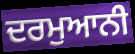
ਦਰਮੁਆਨੀ